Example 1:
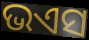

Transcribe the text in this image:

ଭଏସ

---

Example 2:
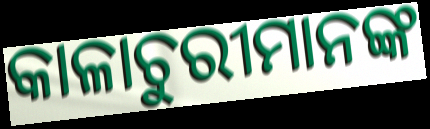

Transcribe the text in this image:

କାଳାଚୁରୀମାନଙ୍କ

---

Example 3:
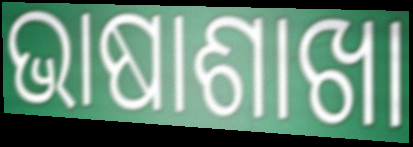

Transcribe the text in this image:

ଭାଷାଶାଖା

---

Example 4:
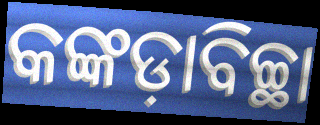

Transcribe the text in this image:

କଙ୍କଡ଼ାବିଚ୍ଛା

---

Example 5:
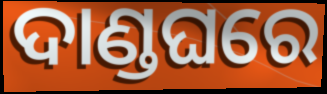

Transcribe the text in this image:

ଦାଣ୍ଡଘରେ